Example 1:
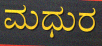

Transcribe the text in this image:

ಮಧುರ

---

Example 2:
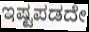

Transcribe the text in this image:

ಇಷ್ಟಪಡದೇ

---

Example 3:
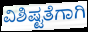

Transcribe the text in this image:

ವಿಶಿಷ್ಟತೆಗಾಗಿ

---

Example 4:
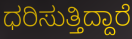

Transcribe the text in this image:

ಧರಿಸುತ್ತಿದ್ದಾರೆ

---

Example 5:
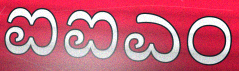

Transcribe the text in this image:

ಐಐಎಂ